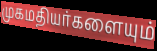
முகமதியர்களையும்